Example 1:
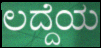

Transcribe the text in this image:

ಲದ್ದೆಯ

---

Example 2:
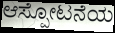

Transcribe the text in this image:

ಆಸ್ಪೋಟನೆಯ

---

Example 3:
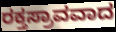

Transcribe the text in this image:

ರಕ್ತಸ್ರಾವವಾದ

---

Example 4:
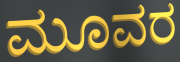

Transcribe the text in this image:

ಮೂವರ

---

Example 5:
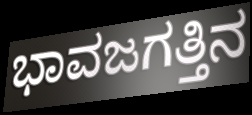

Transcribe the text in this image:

ಭಾವಜಗತ್ತಿನ